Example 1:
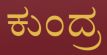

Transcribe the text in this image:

ಕುಂದ್ರ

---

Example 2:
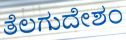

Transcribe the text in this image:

ತೆಲಗುದೇಶಂ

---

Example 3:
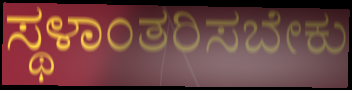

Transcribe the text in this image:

ಸ್ಥಳಾಂತರಿಸಬೇಕು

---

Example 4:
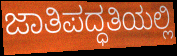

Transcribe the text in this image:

ಜಾತಿಪದ್ಧತಿಯಲ್ಲಿ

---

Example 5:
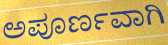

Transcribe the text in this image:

ಅಪೂರ್ಣವಾಗಿ